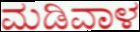
ಮಡಿವಾಳ